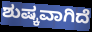
ಶುಷ್ಕವಾಗಿದೆ